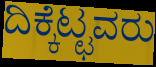
ದಿಕ್ಕೆಟ್ಟವರು